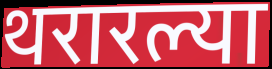
थरारल्या